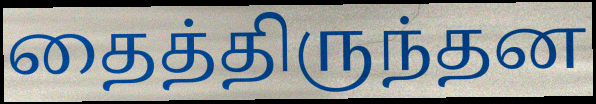
தைத்திருந்தன